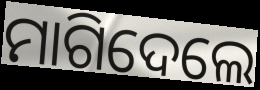
ମାଗିଦେଲେ